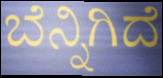
ಬೆನ್ನಿಗಿದೆ